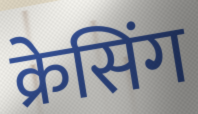
क्रेसिंग